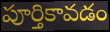
పూర్తికావడం